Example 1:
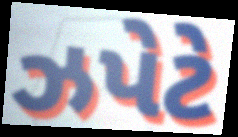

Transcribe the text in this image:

ઝપેટે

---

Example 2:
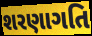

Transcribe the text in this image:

શરણાગતિ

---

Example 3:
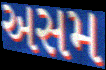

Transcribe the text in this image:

અસમ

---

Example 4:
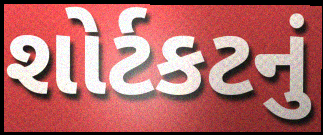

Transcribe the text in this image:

શોર્ટકટનું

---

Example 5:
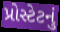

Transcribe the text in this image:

પ્રોસ્ટેટનું